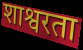
शाश्वरता